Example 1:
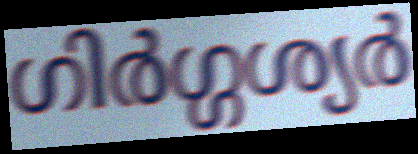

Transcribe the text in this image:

ഗിർഗ്ഗശ്യർ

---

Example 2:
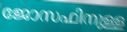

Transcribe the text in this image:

ജോസഫിനുള്ള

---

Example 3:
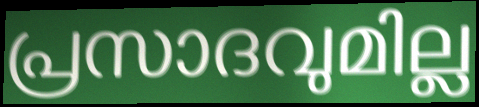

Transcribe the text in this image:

പ്രസാദവുമില്ല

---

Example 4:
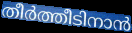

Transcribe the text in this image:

തീർത്തീടിനാൻ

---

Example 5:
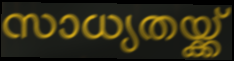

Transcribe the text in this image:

സാധ്യതയ്ക്ക്